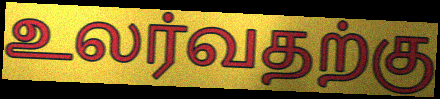
உலர்வதற்கு